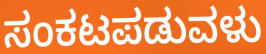
ಸಂಕಟಪಡುವಳು